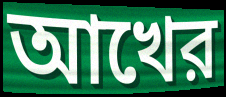
আখের